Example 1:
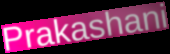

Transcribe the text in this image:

Prakashani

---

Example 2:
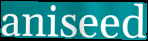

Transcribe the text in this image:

aniseed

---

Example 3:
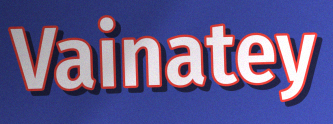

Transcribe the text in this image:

Vainatey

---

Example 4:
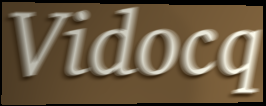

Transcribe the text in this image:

Vidocq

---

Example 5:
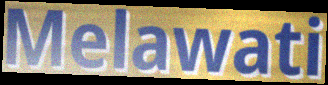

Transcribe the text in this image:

Melawati